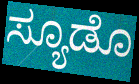
ಸ್ಯೂಡೊ